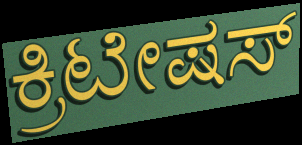
ಕ್ರಿಟೇಷಸ್